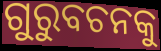
ଗୁରୁବଚନକୁ